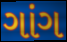
ગાંગ